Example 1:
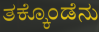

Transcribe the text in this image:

ತಕ್ಕೊಂಡೆನು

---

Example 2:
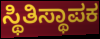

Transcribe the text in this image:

ಸ್ಥಿತಿಸ್ಥಾಪಕ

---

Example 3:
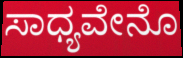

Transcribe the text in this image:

ಸಾಧ್ಯವೇನೊ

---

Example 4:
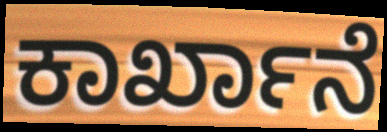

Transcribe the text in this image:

ಕಾರ್ಖಾನೆ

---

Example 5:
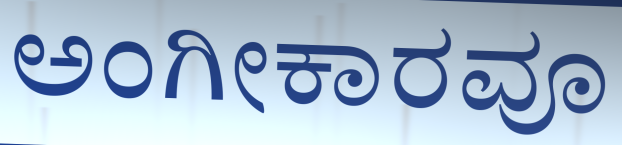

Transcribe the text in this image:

ಅಂಗೀಕಾರವೂ